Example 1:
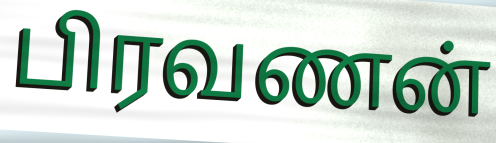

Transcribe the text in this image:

பிரவணன்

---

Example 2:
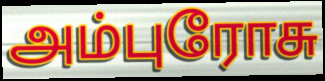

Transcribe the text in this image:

அம்புரோசு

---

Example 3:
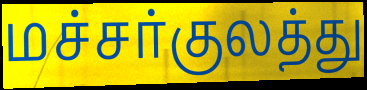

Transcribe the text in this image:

மச்சர்குலத்து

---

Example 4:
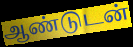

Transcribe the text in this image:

ஆண்டுடன்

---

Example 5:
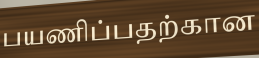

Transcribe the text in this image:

பயணிப்பதற்கான